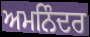
ਅਮਨਿੰਦਰ